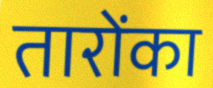
तारोंका